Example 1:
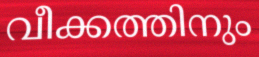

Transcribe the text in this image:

വീക്കത്തിനും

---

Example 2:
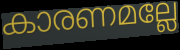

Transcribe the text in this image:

കാരണമല്ലേ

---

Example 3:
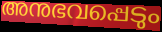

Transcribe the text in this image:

അനുഭവപ്പെടും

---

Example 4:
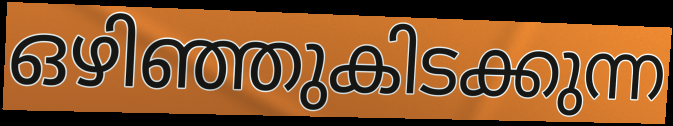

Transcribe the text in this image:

ഒഴിഞ്ഞുകിടക്കുന്ന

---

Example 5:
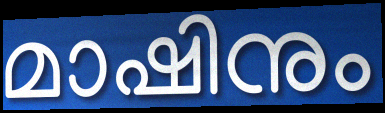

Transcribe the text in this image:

മാഷിനും